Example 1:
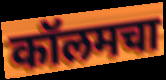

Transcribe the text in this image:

कॉलमचा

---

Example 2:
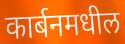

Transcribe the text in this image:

कार्बनमधील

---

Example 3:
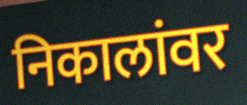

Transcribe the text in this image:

निकालांवर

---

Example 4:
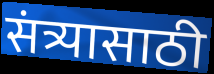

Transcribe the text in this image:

संत्र्यासाठी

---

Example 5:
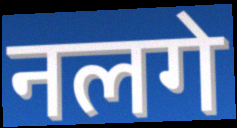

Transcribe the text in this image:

नलगे